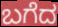
ಬಗೆದ